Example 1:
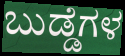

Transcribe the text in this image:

ಬುಡ್ಡೆಗಳ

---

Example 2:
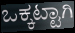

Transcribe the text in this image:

ಒಕ್ಕಟ್ಟಾಗಿ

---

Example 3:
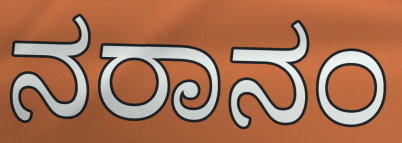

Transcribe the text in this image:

ನರಾನಂ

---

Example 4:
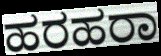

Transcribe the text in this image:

ಹರಹರಾ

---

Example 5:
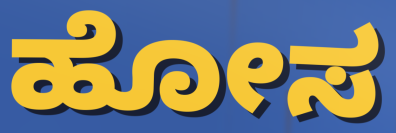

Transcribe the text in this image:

ಹೋಸ